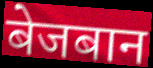
बेजबान